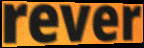
rever